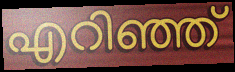
എറിഞ്ഞ്